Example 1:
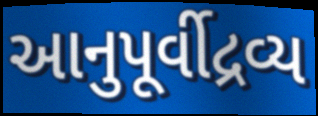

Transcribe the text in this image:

આનુપૂર્વીદ્રવ્ય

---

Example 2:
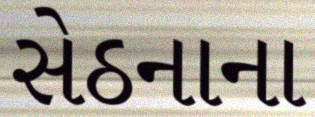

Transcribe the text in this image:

સેઠનાના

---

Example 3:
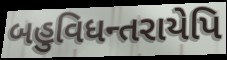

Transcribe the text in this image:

બહુવિધન્તરાયેપિ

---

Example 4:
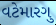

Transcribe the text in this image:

વટેમારગુ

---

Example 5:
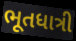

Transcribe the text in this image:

ભૂતધાત્રી